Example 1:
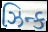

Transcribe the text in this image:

ઝિન્ક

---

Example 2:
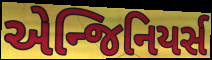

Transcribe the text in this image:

એન્જિનિયર્સ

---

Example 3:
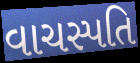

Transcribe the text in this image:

વાચસ્પતિ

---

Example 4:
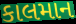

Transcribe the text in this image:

કાલમાન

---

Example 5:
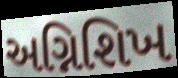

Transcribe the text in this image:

અગ્નિશિખ